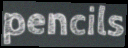
pencils